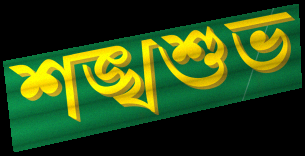
শঙ্খশুভ